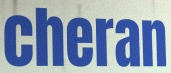
cheran